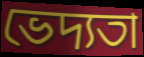
ভেদ্যতা